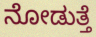
ನೋಡುತ್ತೆ